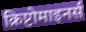
क्रिप्टोमाइनर्स